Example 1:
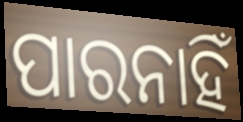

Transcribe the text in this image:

ପାରନାହିଁ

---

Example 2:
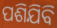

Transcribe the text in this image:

ପଶିଯିବି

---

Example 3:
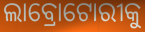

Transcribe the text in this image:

ଲାବ୍ରୋଟୋରୀକୁ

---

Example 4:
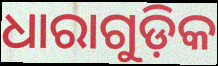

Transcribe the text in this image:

ଧାରାଗୁଡ଼ିକ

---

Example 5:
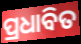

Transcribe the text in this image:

ପ୍ରଧାବିତ